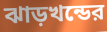
ঝাড়খন্ডের